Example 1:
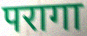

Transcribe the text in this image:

परागा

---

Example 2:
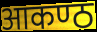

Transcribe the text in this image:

आकण्ठ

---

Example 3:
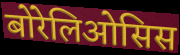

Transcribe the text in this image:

बोरेलिओसिस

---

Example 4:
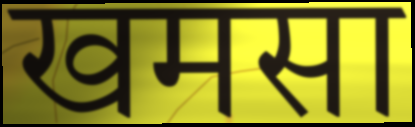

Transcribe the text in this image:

खमसा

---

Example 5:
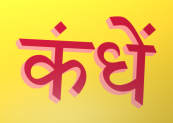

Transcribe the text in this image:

कंधें